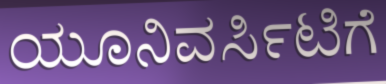
ಯೂನಿವರ್ಸಿಟಿಗೆ